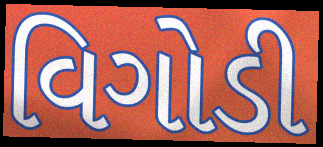
વિગોડી